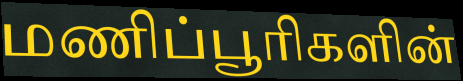
மணிப்பூரிகளின்